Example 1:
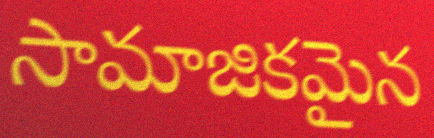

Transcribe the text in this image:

సామాజికమైన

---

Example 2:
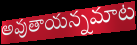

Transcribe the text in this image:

అవుతాయన్నమాట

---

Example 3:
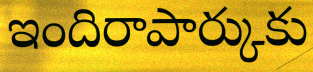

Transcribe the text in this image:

ఇందిరాపార్కుకు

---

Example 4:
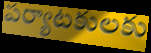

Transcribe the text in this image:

పర్యాటకులకు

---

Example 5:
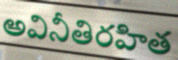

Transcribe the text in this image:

అవినీతిరహిత